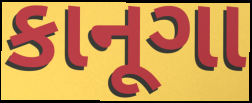
કાનૂગા